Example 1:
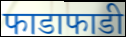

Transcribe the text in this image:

फाडाफाडी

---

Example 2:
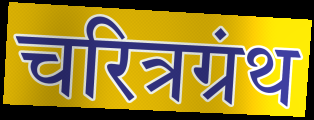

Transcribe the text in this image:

चरित्रग्रंथ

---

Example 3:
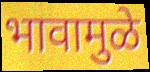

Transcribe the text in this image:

भावामुळे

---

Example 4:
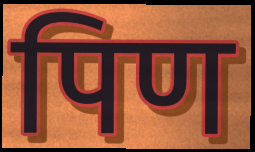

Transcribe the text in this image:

पिण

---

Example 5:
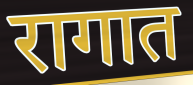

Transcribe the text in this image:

रागात